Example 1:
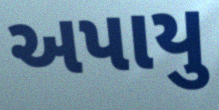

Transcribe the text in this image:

અપાયુ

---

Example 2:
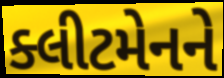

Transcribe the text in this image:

ક્લીટમેનને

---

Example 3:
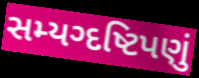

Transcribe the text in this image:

સમ્યગ્દષ્ટિપણું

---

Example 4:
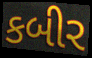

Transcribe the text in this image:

કબીર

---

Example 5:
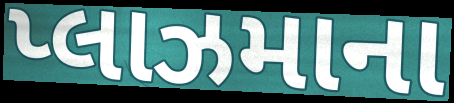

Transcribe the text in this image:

પ્લાઝમાના